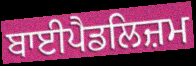
ਬਾਈਪੈਡਲਿਜ਼ਮ